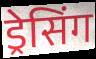
ड्रेसिंग